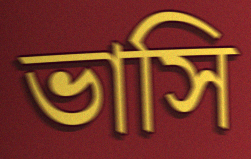
ভাসি